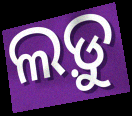
ଲଡ଼ୁ